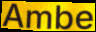
Ambe